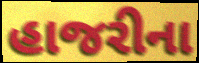
હાજરીના